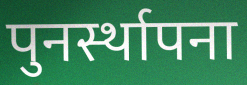
पुनर्स्थापना